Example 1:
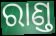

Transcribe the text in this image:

ରାଣ୍ଡ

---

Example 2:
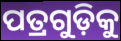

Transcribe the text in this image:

ପତ୍ରଗୁଡ଼ିକୁ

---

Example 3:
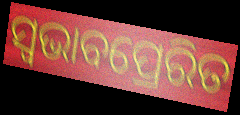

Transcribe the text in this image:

ସ୍ୱଭାବପ୍ରେରିତ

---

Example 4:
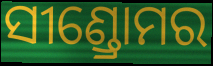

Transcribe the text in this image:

ସୀଣ୍ଡ୍ରୋମର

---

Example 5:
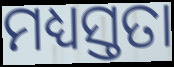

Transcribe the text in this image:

ମଧ୍ୟସ୍ତତା